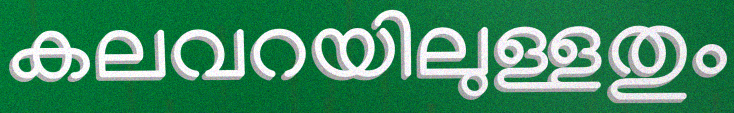
കലവറയിലുള്ളതും